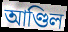
আণ্ডিল